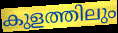
കുളത്തിലും